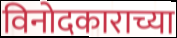
विनोदकाराच्या